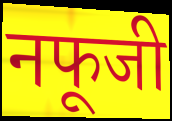
नफूजी